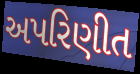
અપરિણીત